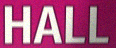
HALL